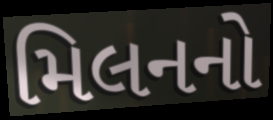
મિલનનો